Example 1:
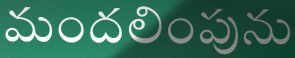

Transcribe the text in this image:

మందలింపును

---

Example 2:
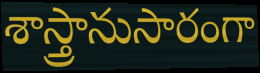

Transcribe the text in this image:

శాస్త్రానుసారంగా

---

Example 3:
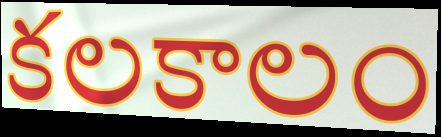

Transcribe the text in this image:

కలకాలం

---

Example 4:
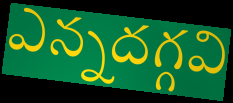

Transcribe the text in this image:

ఎన్నదగ్గవి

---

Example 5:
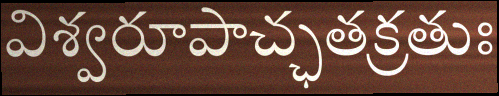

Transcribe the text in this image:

విశ్వరూపాచ్ఛతక్రతుః